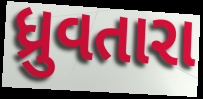
ધ્રુવતારા